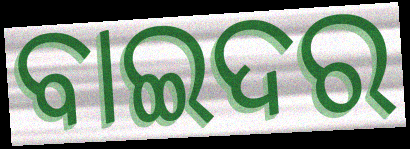
ବାଇଦର